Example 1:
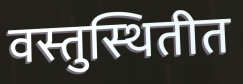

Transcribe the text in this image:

वस्तुस्थितीत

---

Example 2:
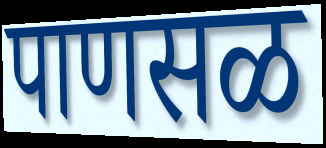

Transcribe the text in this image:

पाणसळ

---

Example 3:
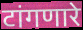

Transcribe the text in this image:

टांगणारे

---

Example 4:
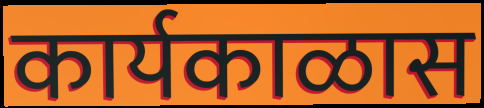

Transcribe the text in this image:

कार्यकाळास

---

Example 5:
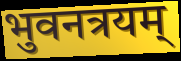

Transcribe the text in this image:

भुवनत्रयम्